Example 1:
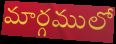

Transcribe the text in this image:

మార్గములో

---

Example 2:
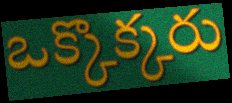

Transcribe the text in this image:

ఒక్కొక్కరు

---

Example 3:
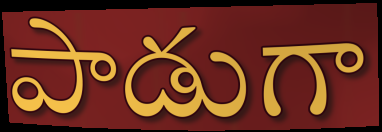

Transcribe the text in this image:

పాడుగా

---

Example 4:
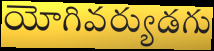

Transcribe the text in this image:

యోగివర్యుడగు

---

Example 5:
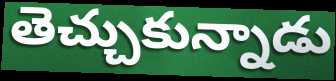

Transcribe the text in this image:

తెచ్చుకున్నాడు